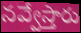
నవ్వేస్తారు